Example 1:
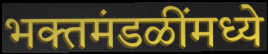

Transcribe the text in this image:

भक्तमंडळींमध्ये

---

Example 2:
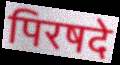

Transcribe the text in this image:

पिरषदे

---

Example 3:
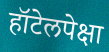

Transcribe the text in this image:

हॉटेलपेक्षा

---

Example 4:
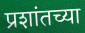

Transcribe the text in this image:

प्रशांतच्या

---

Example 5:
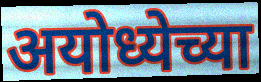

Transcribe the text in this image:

अयोध्येच्या